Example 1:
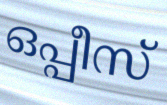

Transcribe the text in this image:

ഒപ്പീസ്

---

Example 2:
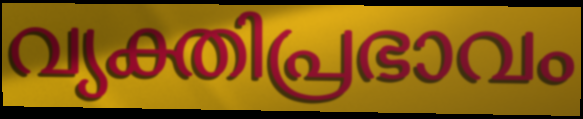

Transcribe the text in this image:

വ്യക്തിപ്രഭാവം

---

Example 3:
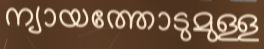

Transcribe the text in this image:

ന്യായത്തോടുമുള്ള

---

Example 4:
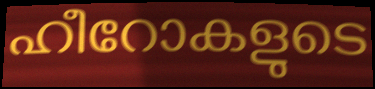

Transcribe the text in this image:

ഹീറോകളുടെ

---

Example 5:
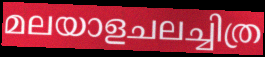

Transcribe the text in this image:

മലയാളചലച്ചിത്ര